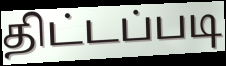
திட்டப்படி